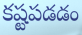
కష్టపడడం